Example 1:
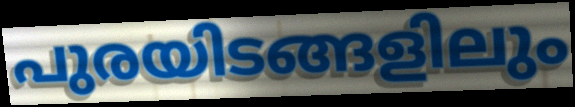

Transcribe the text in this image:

പുരയിടങ്ങളിലും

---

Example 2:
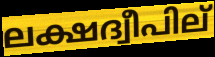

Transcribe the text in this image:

ലക്ഷദ്വീപില്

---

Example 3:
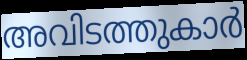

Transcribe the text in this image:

അവിടത്തുകാർ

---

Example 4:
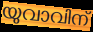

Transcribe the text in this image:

യുവാവിന്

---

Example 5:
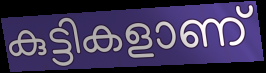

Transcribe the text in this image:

കുട്ടികളാണ്